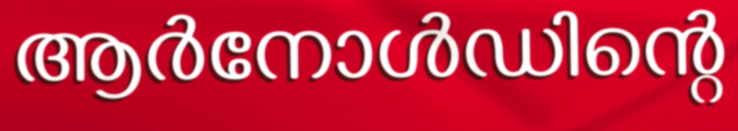
ആർനോൾഡിന്റെ